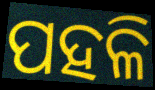
ପହଳି